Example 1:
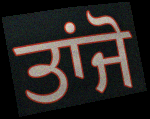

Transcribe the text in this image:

ਤਾਂਜੋ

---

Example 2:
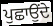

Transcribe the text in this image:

ਪੁਛਾਉਂਦੇ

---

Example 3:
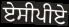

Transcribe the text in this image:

ਏਸੀਪੀਏ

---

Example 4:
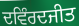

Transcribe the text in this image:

ਦਵਿੰਰਦਜੀਤ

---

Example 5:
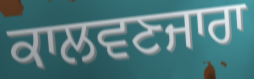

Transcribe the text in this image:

ਕਾਲਵਣਜਾਰਾ